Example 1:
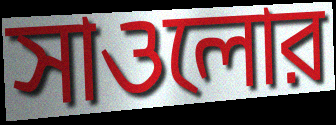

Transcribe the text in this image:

সাওলোর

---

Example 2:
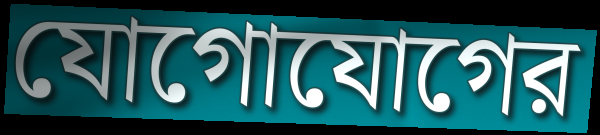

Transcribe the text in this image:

যোগোযোগের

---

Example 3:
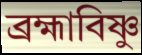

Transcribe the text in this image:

ব্রহ্মাবিষ্ণু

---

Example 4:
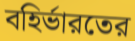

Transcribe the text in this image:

বহির্ভারতের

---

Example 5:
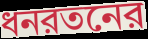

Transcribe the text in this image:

ধনরতনের